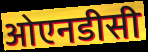
ओएनडीसी